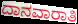
ದಾನವಾರಾತಿ